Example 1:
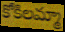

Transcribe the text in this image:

కోకిలమ్మా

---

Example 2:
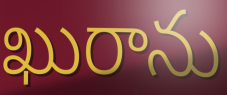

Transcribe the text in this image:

ఖురాను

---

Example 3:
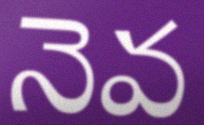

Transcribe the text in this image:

నెవ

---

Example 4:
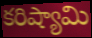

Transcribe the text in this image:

కరిష్యామి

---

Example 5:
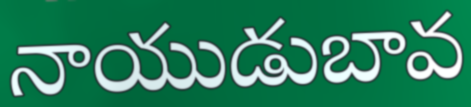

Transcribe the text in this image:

నాయుడుబావ